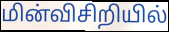
மின்விசிறியில்